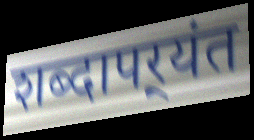
शब्दापर्यंत